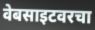
वेबसाइटवरचा